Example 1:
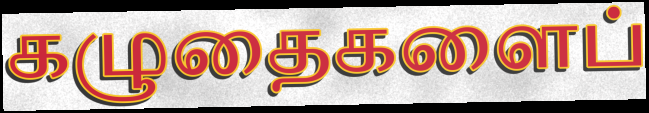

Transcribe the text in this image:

கழுதைகளைப்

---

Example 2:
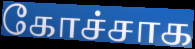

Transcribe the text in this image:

கோச்சாக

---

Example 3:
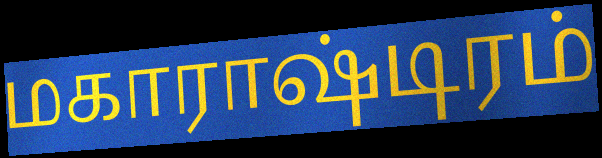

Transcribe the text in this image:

மகாராஷ்டிரம்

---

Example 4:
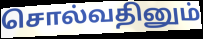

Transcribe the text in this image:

சொல்வதினும்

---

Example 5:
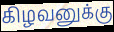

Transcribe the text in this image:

கிழவனுக்கு